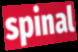
spinal